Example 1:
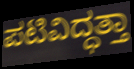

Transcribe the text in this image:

ಪಟಿವಿದ್ಧತ್ತಾ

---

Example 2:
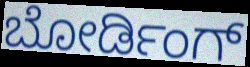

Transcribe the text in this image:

ಬೋರ್ಡಿಂಗ್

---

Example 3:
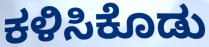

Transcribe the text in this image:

ಕಳಿಸಿಕೊಡು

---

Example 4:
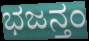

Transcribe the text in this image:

ಭಜನ್ತಂ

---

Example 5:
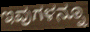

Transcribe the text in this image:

ಇವುಗಳನ್ನೂ